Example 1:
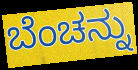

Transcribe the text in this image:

ಬೆಂಚನ್ನು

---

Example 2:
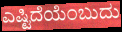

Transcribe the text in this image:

ಎಷ್ಟಿದೆಯೆಂಬುದು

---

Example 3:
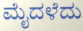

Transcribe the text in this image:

ಮೈದಳೆದು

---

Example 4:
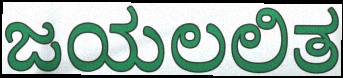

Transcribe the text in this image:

ಜಯಲಲಿತ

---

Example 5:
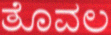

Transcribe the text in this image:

ತೊವಲ